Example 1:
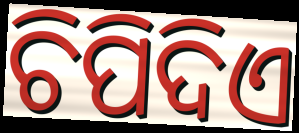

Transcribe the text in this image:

ଚିପିଦିଏ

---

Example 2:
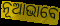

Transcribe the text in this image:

ନୂଆଭାବେ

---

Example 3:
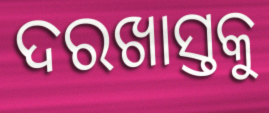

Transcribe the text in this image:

ଦରଖାସ୍ତକୁ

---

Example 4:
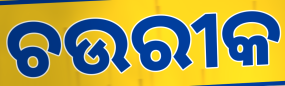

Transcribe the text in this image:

ଚଉରୀକ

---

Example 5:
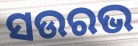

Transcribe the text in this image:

ସଉରଭ